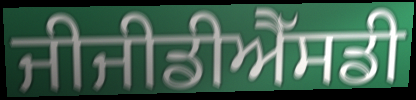
ਜੀਜੀਡੀਐੱਸਡੀ